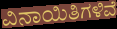
ವಿನಾಯಿತಿಗಳಿವೆ